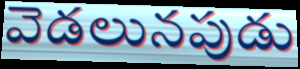
వెడలునపుడు